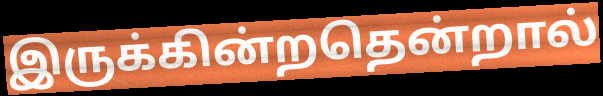
இருக்கின்றதென்றால்